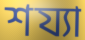
শয্যা